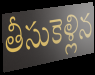
తీసుకెళ్లిన